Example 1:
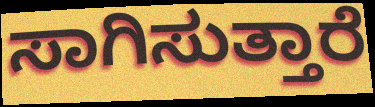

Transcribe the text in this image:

ಸಾಗಿಸುತ್ತಾರೆ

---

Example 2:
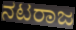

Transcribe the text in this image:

ನಟರಾಜ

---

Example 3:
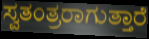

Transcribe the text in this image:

ಸ್ವತಂತ್ರರಾಗುತ್ತಾರೆ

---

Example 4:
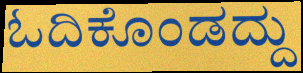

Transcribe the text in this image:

ಓದಿಕೊಂಡದ್ದು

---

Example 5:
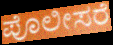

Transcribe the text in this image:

ಪೊಲೀಸರೆ